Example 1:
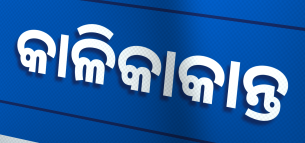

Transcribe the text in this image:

କାଳିକାକାନ୍ତ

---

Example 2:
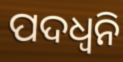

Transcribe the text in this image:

ପଦଧ୍ୱନି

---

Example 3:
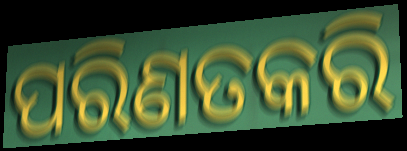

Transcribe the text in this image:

ପରିଣତକରି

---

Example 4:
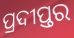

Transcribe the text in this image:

ପ୍ରଦୀପ୍ତର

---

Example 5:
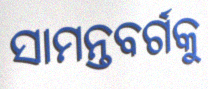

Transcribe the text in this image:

ସାମନ୍ତବର୍ଗକୁ